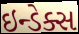
ઇન્ડેક્સ